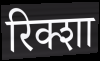
रिक्शा